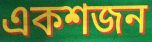
একশজন